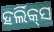
ହର୍ଲିକ୍‌ସ